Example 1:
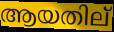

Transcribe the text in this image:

ആയതില്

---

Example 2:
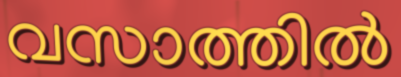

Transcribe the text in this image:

വസാത്തിൽ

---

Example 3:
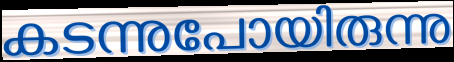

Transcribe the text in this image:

കടന്നുപോയിരുന്നു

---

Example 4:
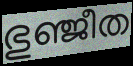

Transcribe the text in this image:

ഭുഞ്ജീത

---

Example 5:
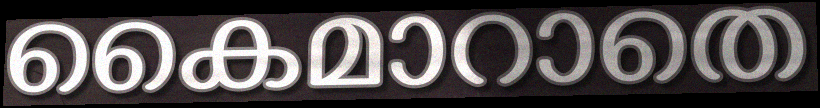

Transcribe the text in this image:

കൈമാറാതെ